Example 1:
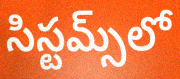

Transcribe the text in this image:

సిస్టమ్స్‌లో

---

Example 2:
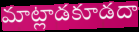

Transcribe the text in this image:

మాట్లాడకూడదా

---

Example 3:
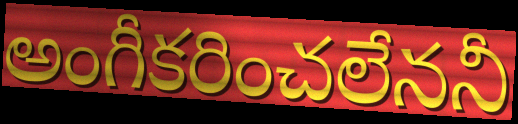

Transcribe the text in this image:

అంగీకరించలేననీ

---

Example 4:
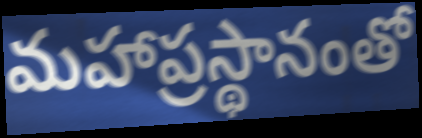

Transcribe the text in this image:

మహాప్రస్థానంతో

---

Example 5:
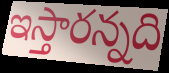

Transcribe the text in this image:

ఇస్తారన్నది